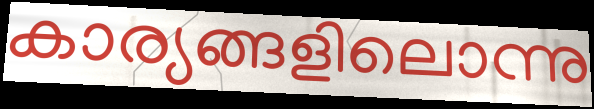
കാര്യങ്ങളിലൊന്നു